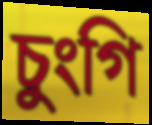
চুংগি